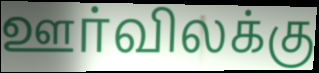
ஊர்விலக்கு